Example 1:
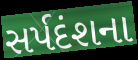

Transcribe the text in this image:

સર્પદંશના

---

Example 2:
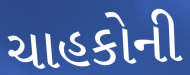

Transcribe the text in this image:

ચાહકોની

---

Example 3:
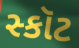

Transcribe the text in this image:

સ્કૉટ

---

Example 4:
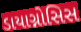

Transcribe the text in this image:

ડાયાગ્નોસિસ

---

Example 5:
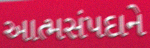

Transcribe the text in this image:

આત્મસંપદાને